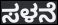
ಸಳನೆ